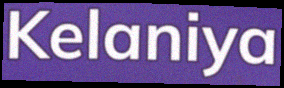
Kelaniya